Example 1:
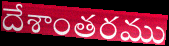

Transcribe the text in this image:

దేశాంతరము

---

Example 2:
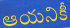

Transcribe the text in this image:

ఆయనికీ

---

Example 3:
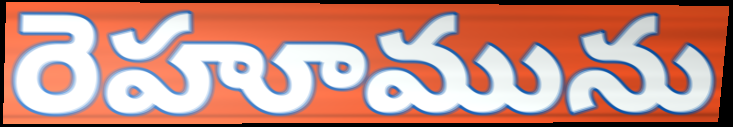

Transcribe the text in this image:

రెహూమును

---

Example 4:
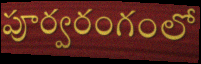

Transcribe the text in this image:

పూర్వరంగంలో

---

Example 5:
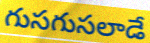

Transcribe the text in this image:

గుసగుసలాడే